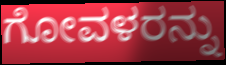
ಗೋವಳರನ್ನು